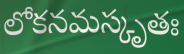
లోకనమస్కృతః